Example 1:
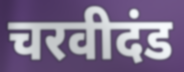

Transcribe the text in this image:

चरवीदंड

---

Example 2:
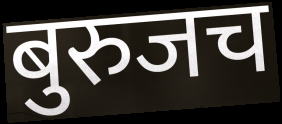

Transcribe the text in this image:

बुरुजच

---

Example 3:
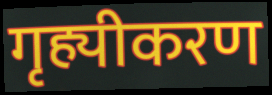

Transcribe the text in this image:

गृह्यीकरण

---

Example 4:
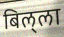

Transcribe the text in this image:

बिल्ला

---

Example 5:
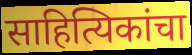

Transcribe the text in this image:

साहित्यिकांचा